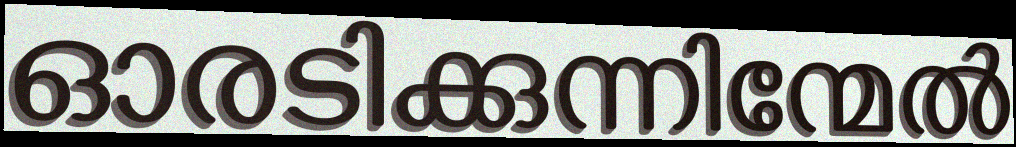
ഓരടിക്കുന്നിന്മേൽ